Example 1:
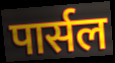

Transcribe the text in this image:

पार्सल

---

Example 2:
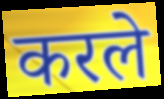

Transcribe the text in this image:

करले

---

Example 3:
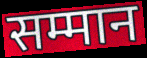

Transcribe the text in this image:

सम्‍मान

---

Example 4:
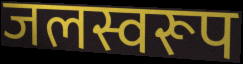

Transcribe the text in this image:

जलस्वरूप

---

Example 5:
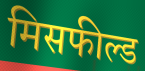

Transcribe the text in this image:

मिसफील्ड